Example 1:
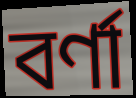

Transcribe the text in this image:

বর্ণা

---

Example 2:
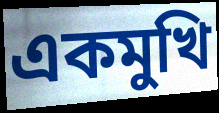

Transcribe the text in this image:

একমুখি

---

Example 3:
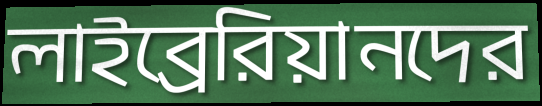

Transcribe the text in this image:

লাইব্রেরিয়ানদের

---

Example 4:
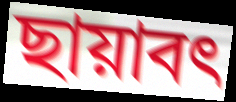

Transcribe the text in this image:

ছায়াবৎ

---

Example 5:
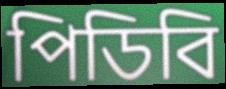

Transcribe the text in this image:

পিডিবি